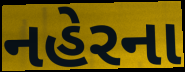
નહેરના